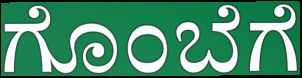
ಗೊಂಬೆಗೆ